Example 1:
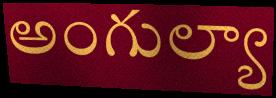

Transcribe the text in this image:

అంగుల్యా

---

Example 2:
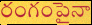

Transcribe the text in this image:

రంగంపైనా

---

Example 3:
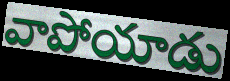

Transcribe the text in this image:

వాపోయాడు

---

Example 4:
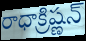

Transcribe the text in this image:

రాధాక్రిష్ణన్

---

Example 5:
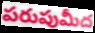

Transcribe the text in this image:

పరుపుమీద